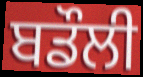
ਬਡੌਲੀ